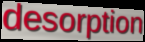
desorption